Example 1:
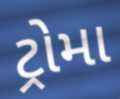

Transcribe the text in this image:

ટ્રોમા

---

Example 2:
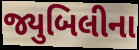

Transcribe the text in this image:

જ્યુબિલીના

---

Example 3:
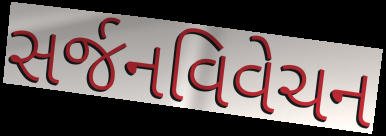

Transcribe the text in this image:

સર્જનવિવેચન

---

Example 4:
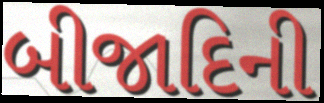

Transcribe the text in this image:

બીજાદિની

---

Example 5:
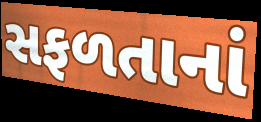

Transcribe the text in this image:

સફળતાનાં